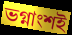
ভগ্নাংশই